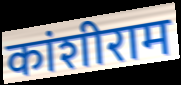
कांशीराम